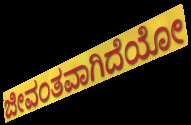
ಜೀವಂತವಾಗಿದೆಯೋ